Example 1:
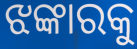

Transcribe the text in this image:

ଝଙ୍କାରକୁ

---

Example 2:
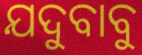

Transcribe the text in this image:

ଯଦୁବାବୁ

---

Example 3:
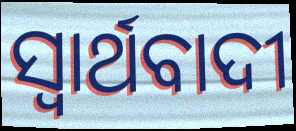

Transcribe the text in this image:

ସ୍ୱାର୍ଥବାଦୀ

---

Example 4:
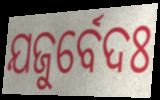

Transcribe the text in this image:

ଯଜୁର୍ବେଦଃ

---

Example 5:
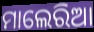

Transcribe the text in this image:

ମାଲେରିଆ